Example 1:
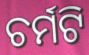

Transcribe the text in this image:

ଚର୍ମଟି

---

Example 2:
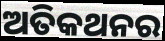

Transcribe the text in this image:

ଅତିକଥନର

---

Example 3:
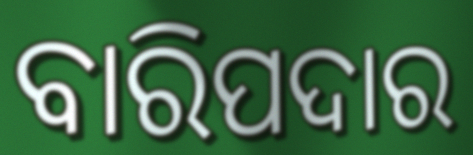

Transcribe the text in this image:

ବାରିପଦାର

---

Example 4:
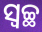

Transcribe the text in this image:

ସ୍ବଚ୍ଛ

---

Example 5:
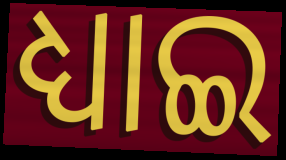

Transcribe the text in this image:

ଧ୍ୟାଇ